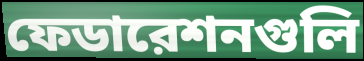
ফেডারেশনগুলি